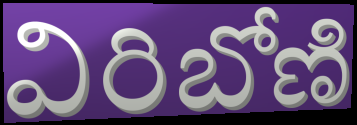
విరిబోణి